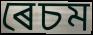
ৰেচম